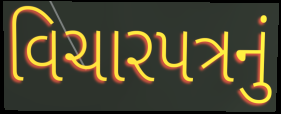
વિચારપત્રનું